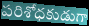
పరిశోధకుడుగా